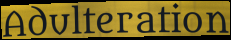
Adulteration